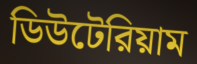
ডিউটেরিয়াম